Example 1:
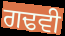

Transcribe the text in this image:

ਗਢਵੀ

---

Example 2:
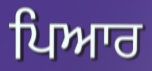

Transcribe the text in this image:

ਪਿਆਰ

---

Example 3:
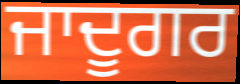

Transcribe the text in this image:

ਜਾਦੂਗਰ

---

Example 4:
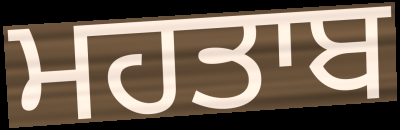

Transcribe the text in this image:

ਮਹਤਾਬ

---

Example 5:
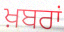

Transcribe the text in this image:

ਖ਼ਬਰਾਂ